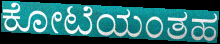
ಕೋಟೆಯಂತಹ